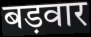
बड़वार